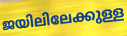
ജയിലിലേക്കുള്ള